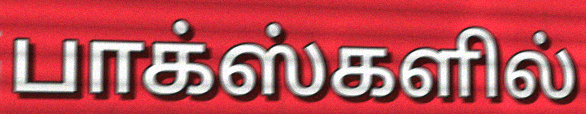
பாக்ஸ்களில்